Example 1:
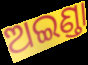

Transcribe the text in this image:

ଅଇଣ୍ଡା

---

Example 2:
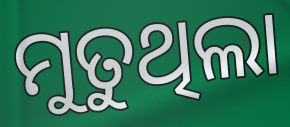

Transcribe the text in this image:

ମୁତୁଥିଲା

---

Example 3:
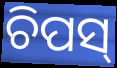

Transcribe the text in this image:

ଚିପସ୍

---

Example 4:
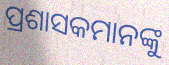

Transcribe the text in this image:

ପ୍ରଶାସକମାନଙ୍କୁ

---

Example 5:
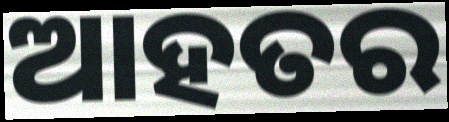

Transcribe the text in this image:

ଆହତର